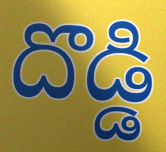
దొడ్డి